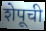
शेपूची